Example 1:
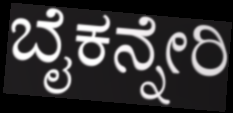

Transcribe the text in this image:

ಬೈಕನ್ನೇರಿ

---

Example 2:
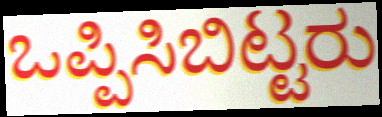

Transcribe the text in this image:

ಒಪ್ಪಿಸಿಬಿಟ್ಟರು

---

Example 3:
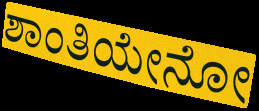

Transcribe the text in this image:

ಶಾಂತಿಯೇನೋ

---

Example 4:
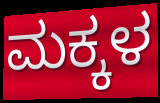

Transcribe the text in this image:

ಮಕ್ಕಳ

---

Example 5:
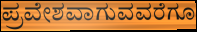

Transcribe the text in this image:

ಪ್ರವೇಶವಾಗುವವರೆಗೂ